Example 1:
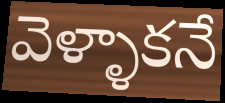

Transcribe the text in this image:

వెళ్ళాకనే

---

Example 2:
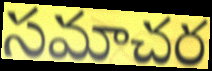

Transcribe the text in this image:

సమాచర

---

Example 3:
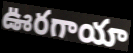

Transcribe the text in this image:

ఊరగాయా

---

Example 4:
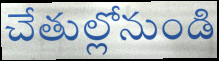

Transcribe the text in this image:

చేతుల్లోనుండి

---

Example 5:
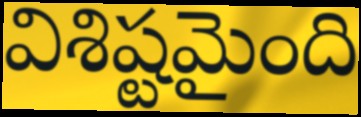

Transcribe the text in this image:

విశిష్టమైంది